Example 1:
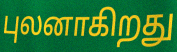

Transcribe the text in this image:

புலனாகிறது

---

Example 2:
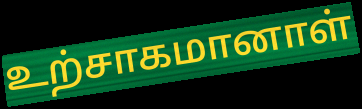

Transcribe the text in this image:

உற்சாகமானாள்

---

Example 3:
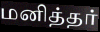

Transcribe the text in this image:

மனித்தர்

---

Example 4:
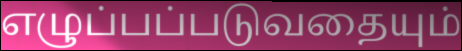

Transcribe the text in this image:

எழுப்பப்படுவதையும்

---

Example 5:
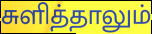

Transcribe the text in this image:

சுளித்தாலும்